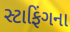
સ્ટાફિંગના